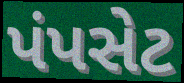
પંપસેટ